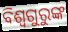
ବିଶ୍ୱଗୁରୁଙ୍କ